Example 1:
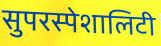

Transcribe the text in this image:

सुपरस्पेशालिटी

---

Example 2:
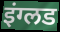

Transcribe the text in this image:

इंग्लड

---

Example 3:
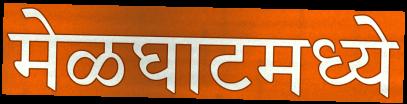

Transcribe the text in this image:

मेळघाटमध्ये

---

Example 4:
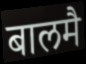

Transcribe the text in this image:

बालमै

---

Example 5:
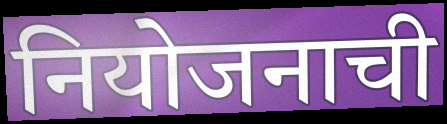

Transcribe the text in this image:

नियोजनाची